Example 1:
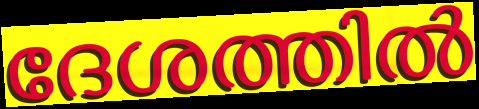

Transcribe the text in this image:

ദേശത്തിൽ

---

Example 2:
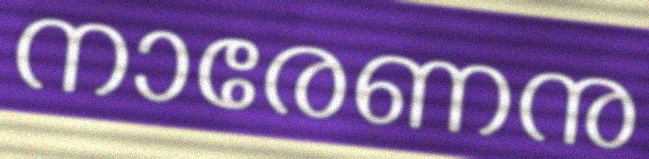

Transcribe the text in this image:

നാരേണനു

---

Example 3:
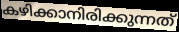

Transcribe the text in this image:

കഴിക്കാനിരിക്കുന്നത്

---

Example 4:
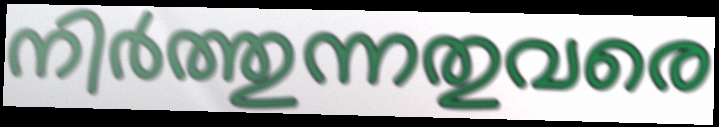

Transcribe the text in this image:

നിർത്തുന്നതുവരെ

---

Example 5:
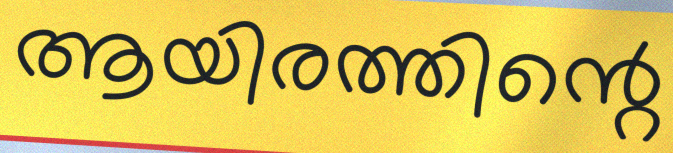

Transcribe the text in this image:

ആയിരത്തിന്റെ